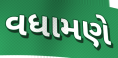
વધામણે